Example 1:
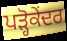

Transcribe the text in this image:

ਪੜ੍ਹੋਕੇਂਦਰ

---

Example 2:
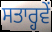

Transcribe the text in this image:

ਸਤਾਰ੍ਹਵੇਂ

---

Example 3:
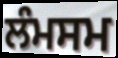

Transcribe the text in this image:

ਲੰਮਸਮ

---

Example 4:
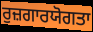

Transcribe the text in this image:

ਰੁਜ਼ਗਾਰਯੋਗਤਾ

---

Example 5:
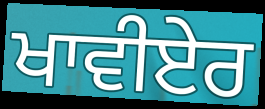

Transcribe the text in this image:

ਖਾਵੀਏਰ